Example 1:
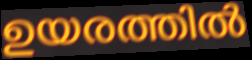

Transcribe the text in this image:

ഉയരത്തിൽ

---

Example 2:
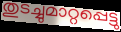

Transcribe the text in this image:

തുടച്ചുമാറ്റപ്പെട്ടു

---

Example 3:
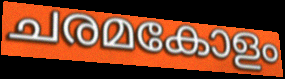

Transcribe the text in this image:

ചരമകോളം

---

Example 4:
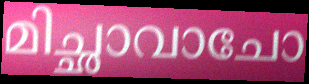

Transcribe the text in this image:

മിച്ഛാവാചോ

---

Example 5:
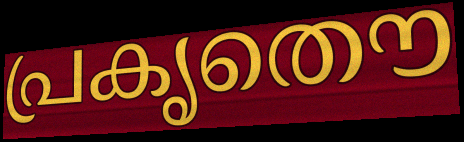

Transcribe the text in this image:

പ്രകൃതൌ